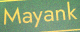
Mayank